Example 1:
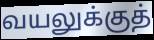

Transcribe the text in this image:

வயலுக்குத்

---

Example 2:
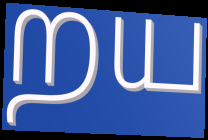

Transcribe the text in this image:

றய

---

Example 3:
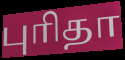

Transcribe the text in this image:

புரிதா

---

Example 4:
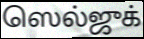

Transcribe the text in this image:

ஸெல்ஜுக்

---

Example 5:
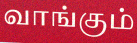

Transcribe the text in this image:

வாங்கும்